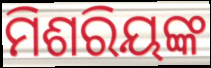
ମିଶରିୟଙ୍କ